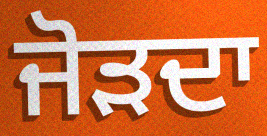
ਜੋੜਦਾ